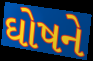
ઘોષને